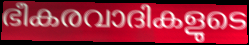
ഭീകരവാദികളുടെ